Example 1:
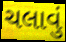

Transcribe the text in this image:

ચલાવું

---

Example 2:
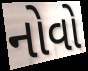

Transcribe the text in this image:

નોવો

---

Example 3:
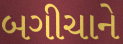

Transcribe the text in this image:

બગીચાને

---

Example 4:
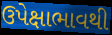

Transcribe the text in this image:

ઉપેક્ષાભાવથી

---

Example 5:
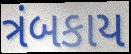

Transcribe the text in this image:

ત્રંબકાય